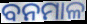
ବନମାଳ